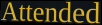
Attended